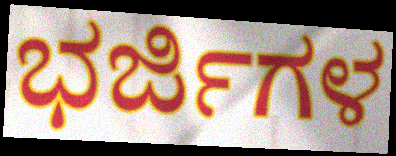
ಭರ್ಜಿಗಳ